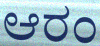
ಆರಂ